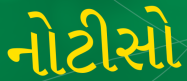
નોટીસો